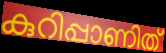
കുറിപ്പാണിത്